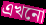
এখনো